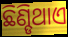
ଛିଣ୍ଡିଥାଏ